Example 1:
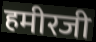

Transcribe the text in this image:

हमीरजी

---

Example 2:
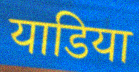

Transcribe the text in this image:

याडिया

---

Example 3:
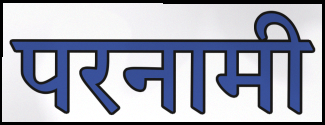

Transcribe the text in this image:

परनामी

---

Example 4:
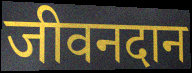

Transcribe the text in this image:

जीवनदान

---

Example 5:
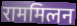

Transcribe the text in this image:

राममिलन